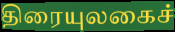
திரையுலகைச்